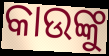
କାଉଙ୍କୁ